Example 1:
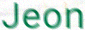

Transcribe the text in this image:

Jeon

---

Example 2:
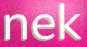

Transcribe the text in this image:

nek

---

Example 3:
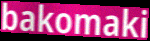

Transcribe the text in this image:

bakomaki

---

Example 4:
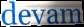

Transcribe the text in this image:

devam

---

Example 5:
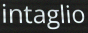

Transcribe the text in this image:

intaglio